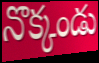
నొక్కండు